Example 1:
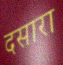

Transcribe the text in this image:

दसारा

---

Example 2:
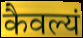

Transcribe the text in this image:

कैवल्यं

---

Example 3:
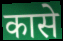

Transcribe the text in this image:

कासे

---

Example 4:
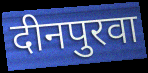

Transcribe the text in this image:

दीनपुरवा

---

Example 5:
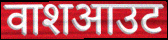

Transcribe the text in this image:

वाशआउट